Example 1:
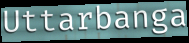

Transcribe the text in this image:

Uttarbanga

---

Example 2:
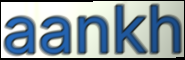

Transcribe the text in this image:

aankh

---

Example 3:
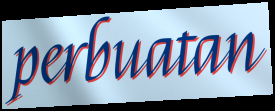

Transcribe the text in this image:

perbuatan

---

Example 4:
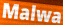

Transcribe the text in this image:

Malwa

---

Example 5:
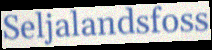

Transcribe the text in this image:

Seljalandsfoss